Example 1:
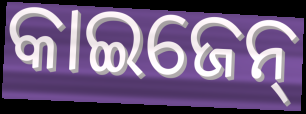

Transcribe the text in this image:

କାଇଜେନ୍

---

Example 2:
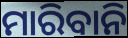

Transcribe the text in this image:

ମାରିବାନି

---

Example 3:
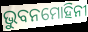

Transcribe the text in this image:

ଭୁବନମୋହିନୀ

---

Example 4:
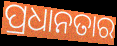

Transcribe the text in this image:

ପ୍ରଧାନତାର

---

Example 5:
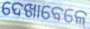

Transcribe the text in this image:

ଦେଖାବେଳେ